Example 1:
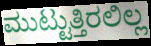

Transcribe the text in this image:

ಮುಟ್ಟುತ್ತಿರಲಿಲ್ಲ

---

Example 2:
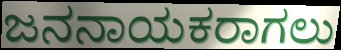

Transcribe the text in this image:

ಜನನಾಯಕರಾಗಲು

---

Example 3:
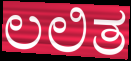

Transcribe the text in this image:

ಲಲಿತ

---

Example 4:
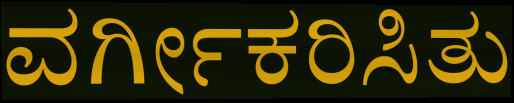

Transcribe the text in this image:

ವರ್ಗೀಕರಿಸಿತು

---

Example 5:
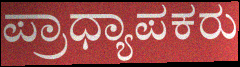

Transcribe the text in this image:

ಪ್ರಾಧ್ಯಾಪಕರು